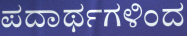
ಪದಾರ್ಥಗಳಿಂದ